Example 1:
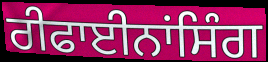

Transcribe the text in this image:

ਰੀਫਾਈਨਾਂਸਿੰਗ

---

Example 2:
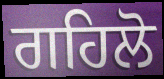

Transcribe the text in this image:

ਗਹਿਲੋ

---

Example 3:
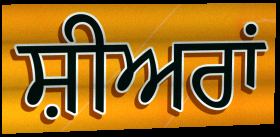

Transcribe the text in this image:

ਸ਼ੀਅਰਾਂ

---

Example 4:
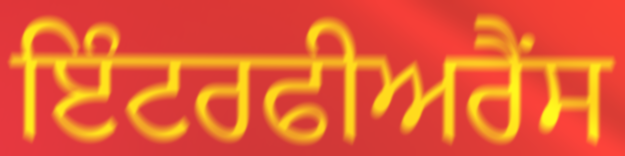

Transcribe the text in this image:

ਇੰਟਰਫੀਅਰੈਂਸ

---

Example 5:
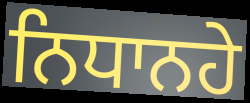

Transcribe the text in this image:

ਨਿਧਾਨਹੇ